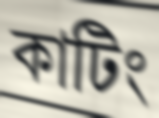
কাটিং